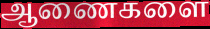
ஆணைகளை